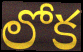
లోక